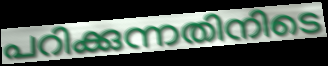
പറിക്കുന്നതിനിടെ